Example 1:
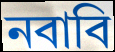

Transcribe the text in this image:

নবাবি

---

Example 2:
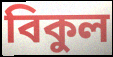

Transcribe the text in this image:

বিকুল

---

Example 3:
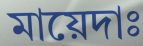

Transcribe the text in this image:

মায়েদাঃ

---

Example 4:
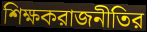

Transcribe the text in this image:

শিক্ষকরাজনীতির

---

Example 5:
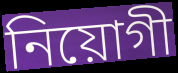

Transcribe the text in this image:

নিয়োগী